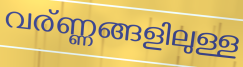
വര്ണ്ണങ്ങളിലുള്ള